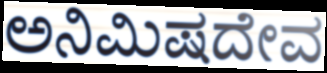
ಅನಿಮಿಷದೇವ